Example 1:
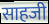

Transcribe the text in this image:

साहजी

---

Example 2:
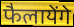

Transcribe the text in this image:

फैलायेंगे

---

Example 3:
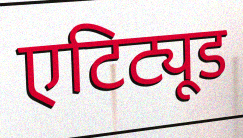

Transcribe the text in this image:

एटिट्यूड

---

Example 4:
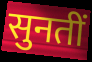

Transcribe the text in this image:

सुनतीं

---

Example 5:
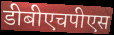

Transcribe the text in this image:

डीबीएचपीएस